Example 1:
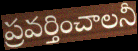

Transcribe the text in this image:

ప్రవర్తించాలనీ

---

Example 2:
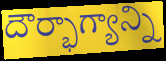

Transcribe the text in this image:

దౌర్భాగ్యాన్ని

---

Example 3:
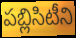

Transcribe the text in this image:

పబ్లిసిటీని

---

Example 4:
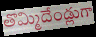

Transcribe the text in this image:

తొమ్మిదేండ్లుగా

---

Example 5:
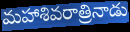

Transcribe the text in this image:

మహాశివరాత్రినాడు